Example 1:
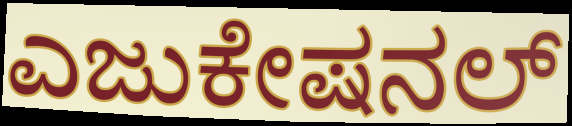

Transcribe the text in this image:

ಎಜುಕೇಷನಲ್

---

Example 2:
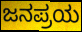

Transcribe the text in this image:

ಜನಪ್ರಯ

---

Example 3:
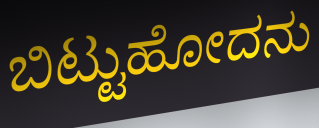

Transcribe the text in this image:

ಬಿಟ್ಟುಹೋದನು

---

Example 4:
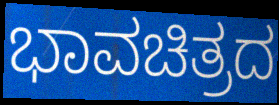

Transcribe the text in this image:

ಭಾವಚಿತ್ರದ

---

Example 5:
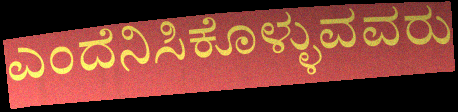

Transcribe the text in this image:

ಎಂದೆನಿಸಿಕೊಳ್ಳುವವರು